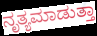
ನೃತ್ಯಮಾಡುತ್ತಾ